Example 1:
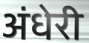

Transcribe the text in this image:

अंधेरी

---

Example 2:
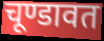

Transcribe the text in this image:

चूण्डावत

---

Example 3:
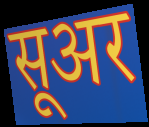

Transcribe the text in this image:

सूअर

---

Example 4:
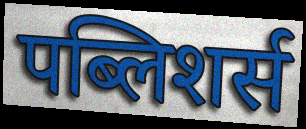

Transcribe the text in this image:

पब्लिशर्स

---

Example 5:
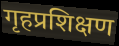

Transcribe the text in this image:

गृहप्रशिक्षण